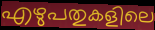
എഴുപതുകളിലെ